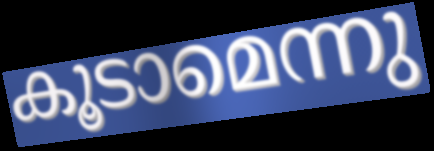
കൂടാമെന്നു